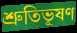
শ্রুতিভূষণ